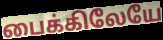
பைக்கிலேயே